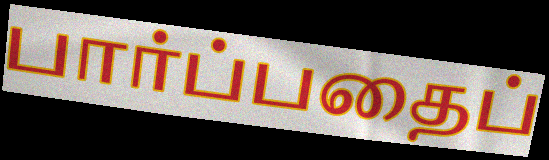
பார்ப்பதைப்